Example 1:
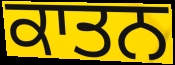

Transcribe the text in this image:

ਕਾਤਨ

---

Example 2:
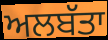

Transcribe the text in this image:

ਅਲਬੱਤਾ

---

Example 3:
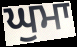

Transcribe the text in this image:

ਘੁਮਾ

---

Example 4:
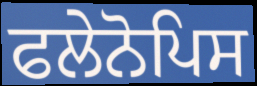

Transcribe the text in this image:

ਫਲੇਨੋਪਿਸ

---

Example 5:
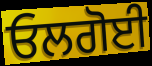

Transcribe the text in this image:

ਓਲਗੋਈ